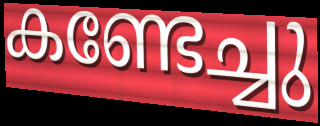
കണ്ടേച്ചു